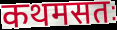
कथमसतः